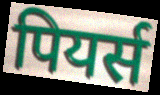
पियर्स